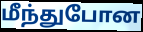
மீந்துபோன